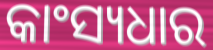
କାଂସ୍ୟଧାର